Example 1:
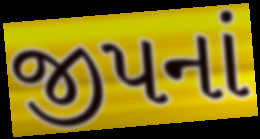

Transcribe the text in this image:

જીપનાં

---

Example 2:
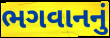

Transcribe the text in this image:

ભગવાનનું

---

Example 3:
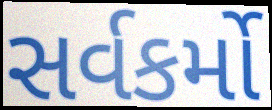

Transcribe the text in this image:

સર્વકર્મો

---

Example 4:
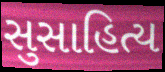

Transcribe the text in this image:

સુસાહિત્ય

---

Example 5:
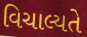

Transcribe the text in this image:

વિચાલ્યતે